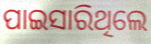
ପାଇସାରିଥିଲେ